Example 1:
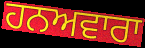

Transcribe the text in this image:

ਹਨਅਵਾਰਾ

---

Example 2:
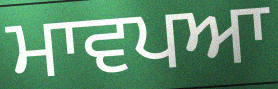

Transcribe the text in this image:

ਮਾਵਪਆ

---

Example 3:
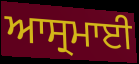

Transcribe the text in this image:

ਆਸ੍ਰਮਾਈ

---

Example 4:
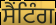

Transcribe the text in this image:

ਸੈਂਟਿੰਗ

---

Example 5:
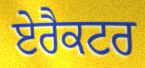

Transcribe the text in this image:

ਏਰੈਕਟਰ